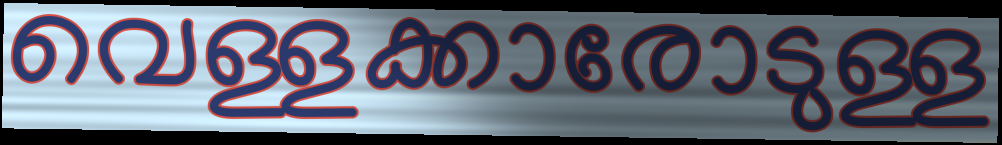
വെള്ളക്കാരോടുള്ള